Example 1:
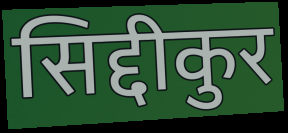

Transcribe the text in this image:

सिद्दीकुर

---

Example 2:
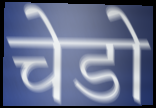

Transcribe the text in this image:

चेडो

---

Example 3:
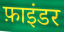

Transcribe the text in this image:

फ़ाइंडर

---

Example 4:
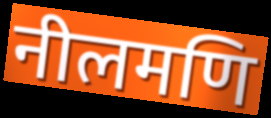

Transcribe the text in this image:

नीलमणि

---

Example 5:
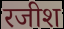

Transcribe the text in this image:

रजीश